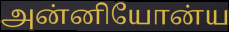
அன்னியோன்ய